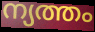
ന്യത്തം